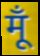
मूँ